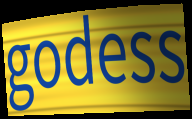
godess